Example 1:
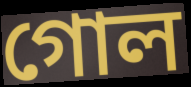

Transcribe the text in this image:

গোল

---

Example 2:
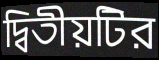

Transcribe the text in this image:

দ্বিতীয়টির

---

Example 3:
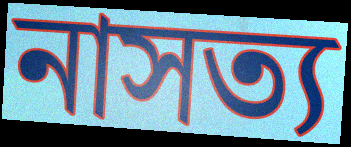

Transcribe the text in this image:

নাসত্য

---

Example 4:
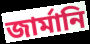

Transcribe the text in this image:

জার্মানি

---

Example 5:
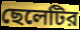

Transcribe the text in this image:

ছেলেটির